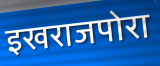
इखराजपोरा